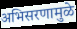
अभिसरणामुळे